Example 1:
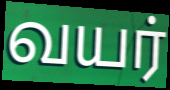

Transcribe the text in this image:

வயர்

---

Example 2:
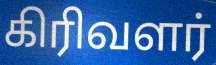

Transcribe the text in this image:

கிரிவளர்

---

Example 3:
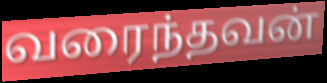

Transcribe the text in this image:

வரைந்தவன்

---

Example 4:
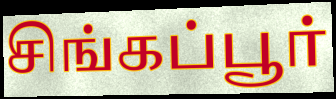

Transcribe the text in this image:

சிங்கப்பூர்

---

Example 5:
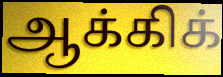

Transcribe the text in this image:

ஆக்கிக்